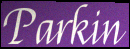
Parkin